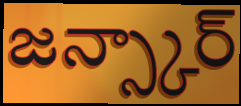
జన్స్కార్